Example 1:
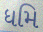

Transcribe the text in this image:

ધમિ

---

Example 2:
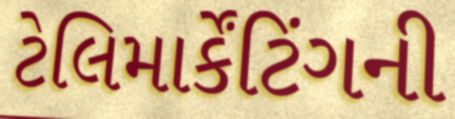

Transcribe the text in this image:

ટેલિમાર્કેંટિંગની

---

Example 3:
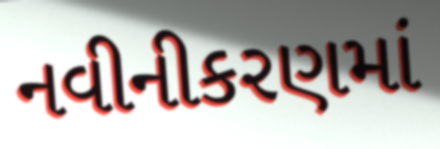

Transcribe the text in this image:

નવીનીકરણમાં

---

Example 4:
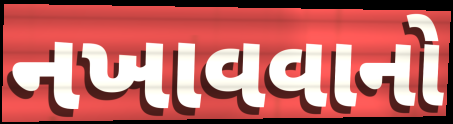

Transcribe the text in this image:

નખાવવાનો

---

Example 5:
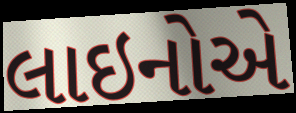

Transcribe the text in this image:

લાઇનોએ